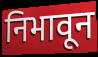
निभावून